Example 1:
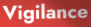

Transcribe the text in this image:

Vigilance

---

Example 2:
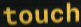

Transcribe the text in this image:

touch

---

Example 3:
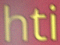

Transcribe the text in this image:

hti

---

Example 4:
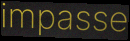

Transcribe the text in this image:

impasse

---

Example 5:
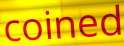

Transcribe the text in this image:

coined